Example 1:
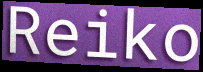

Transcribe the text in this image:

Reiko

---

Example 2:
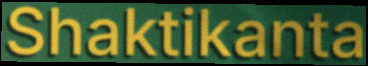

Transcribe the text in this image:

Shaktikanta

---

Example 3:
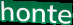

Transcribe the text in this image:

honte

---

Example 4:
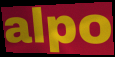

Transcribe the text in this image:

alpo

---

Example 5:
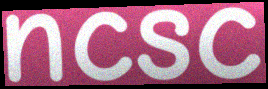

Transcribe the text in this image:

ncsc